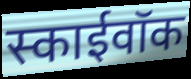
स्काईवॉक